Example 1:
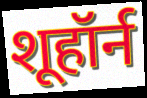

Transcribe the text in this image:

शूहॉर्न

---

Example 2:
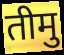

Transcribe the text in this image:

तीमु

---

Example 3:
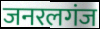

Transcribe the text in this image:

जनरलगंज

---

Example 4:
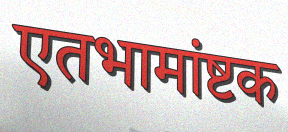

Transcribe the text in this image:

एतभामांष्टक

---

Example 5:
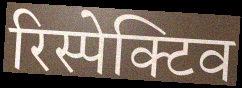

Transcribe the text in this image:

रिस्पेक्टिव